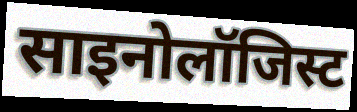
साइनोलॉजिस्ट